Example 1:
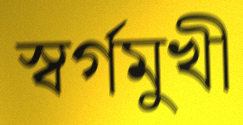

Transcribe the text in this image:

স্বর্গমুখী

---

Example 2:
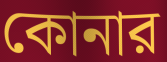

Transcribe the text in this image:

কোনার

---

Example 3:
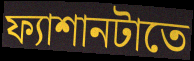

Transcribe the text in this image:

ফ্যাশানটাতে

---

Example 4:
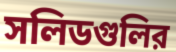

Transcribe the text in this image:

সলিডগুলির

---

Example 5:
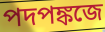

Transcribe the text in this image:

পদপঙ্কজে